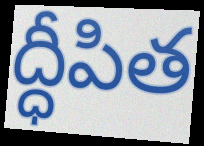
ద్ధీపిత